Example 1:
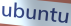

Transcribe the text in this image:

ubuntu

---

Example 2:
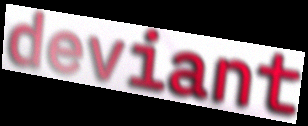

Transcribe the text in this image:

deviant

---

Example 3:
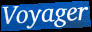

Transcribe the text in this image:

Voyager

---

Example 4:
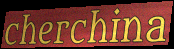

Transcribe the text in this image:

cherchina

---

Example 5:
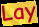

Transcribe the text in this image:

Lay